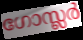
ഗോസ്ലർ